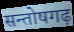
सन्तोषगढ़